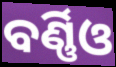
ବର୍ଣ୍ଣିଓ